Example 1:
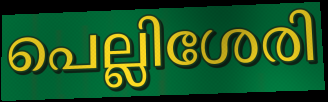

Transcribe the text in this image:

പെല്ലിശേരി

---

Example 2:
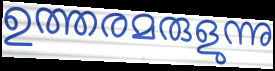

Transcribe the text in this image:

ഉത്തരമരുളുന്നു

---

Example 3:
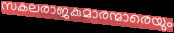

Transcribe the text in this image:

സകലരാജകുമാരന്മാരെയും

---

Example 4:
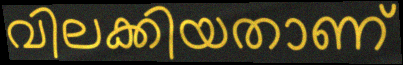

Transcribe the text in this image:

വിലക്കിയതാണ്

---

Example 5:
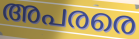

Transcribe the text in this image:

അപരരെ